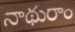
నాథురాం